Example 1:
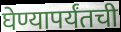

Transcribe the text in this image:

घेण्यापर्यंतची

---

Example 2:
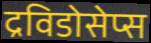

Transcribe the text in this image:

द्रविडोसेप्स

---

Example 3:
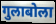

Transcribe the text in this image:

गुलाबोला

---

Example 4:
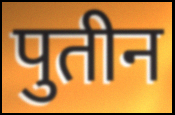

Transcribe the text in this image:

पुतीन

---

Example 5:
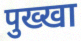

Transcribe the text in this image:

पुख्खा